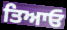
ਤਿਆਓ